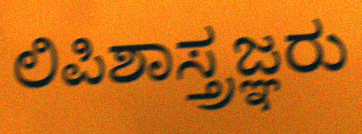
ಲಿಪಿಶಾಸ್ತ್ರಜ್ಞರು